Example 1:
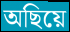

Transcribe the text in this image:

অছিয়ে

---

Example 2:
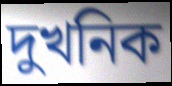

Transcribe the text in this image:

দুখনিক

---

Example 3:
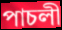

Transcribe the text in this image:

পাচলী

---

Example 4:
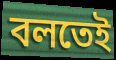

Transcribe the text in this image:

বলতেই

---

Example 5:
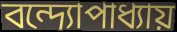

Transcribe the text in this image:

বন্দ্যোপাধ্যায়